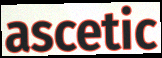
ascetic